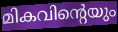
മികവിന്റെയും